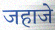
जहाजे